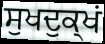
ਸੁਖਦੁਕ੍ਖਂ